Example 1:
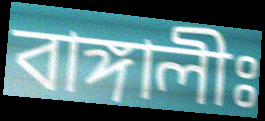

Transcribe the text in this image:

বাঙ্গালীঃ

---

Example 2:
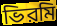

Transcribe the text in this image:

ভিরমি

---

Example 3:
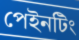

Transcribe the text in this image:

পেইনটিং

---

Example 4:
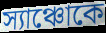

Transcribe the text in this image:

স্যাঞ্চোকে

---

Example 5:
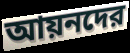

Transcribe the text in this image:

আয়নদের